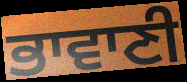
ਭਾਵਾਣੀ